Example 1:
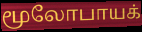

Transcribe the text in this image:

மூலோபாயக்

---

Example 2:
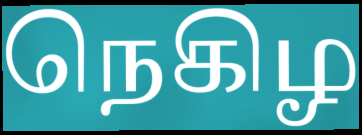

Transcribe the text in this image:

நெகிழ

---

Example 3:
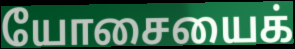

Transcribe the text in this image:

யோசையைக்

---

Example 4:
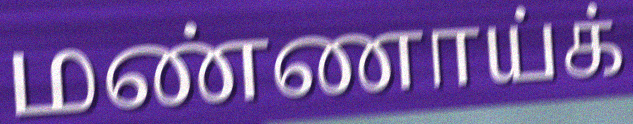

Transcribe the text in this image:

மண்ணாய்க்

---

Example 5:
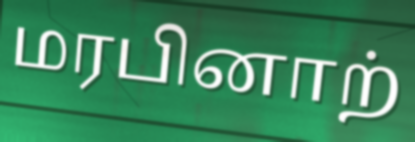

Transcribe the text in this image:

மரபினாற்